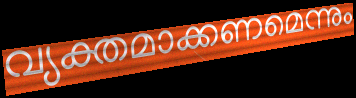
വ്യക്തമാക്കണമെന്നും